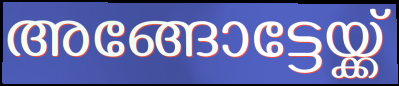
അങ്ങോട്ടേയ്ക്ക്